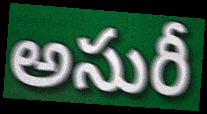
అసురీ